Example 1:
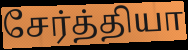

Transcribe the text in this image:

சேர்த்தியா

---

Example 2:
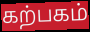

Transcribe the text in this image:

கற்பகம்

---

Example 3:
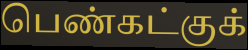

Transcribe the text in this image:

பெண்கட்குக்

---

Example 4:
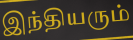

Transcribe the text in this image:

இந்தியரும்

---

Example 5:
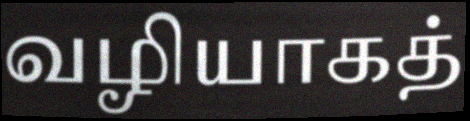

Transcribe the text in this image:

வழியாகத்